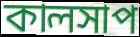
কালসাপ